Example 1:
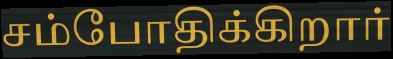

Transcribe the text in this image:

சம்போதிக்கிறார்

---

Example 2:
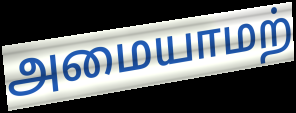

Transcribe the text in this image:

அமையாமற்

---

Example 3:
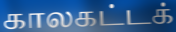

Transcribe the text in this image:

காலகட்டக்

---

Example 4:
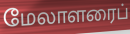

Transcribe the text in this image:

மேலாளரைப்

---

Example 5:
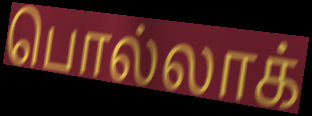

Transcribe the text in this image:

பொல்லாக்